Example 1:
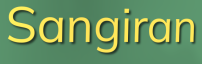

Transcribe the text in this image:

Sangiran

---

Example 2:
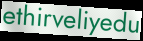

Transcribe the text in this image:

ethirveliyedu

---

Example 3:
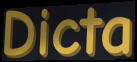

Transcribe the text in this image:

Dicta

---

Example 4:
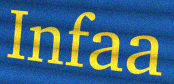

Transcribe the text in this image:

Infaa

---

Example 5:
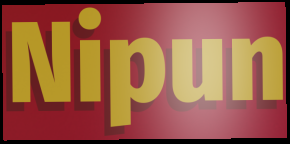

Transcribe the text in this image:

Nipun